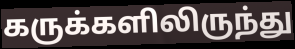
கருக்களிலிருந்து